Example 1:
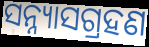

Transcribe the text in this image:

ସନ୍ନ୍ୟାସଗ୍ରହଣ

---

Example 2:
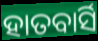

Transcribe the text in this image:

ହାତବାର୍ସି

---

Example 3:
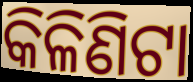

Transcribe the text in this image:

କିଳିଣିଟା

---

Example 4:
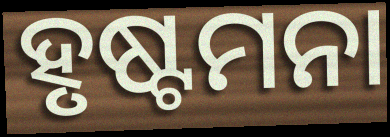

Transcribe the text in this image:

ହୃଷ୍ଟମନା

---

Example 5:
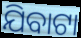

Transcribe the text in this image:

ଯିବାଟା